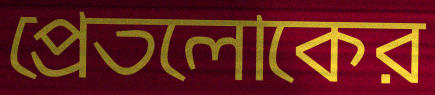
প্রেতলোকের